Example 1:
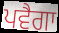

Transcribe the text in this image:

ਪਵੈਗਾ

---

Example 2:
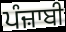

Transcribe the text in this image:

ਪੰਜ਼ਾਬੀ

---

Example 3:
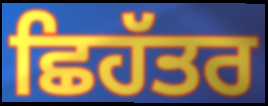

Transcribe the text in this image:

ਛਿਹੱਤਰ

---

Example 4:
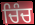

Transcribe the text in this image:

ਚਿੰਚ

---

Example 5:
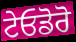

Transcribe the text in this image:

ਟੇਓਡੋਰੋ